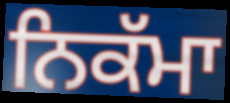
ਨਿਕੱਮਾ